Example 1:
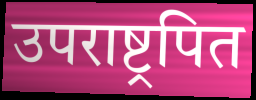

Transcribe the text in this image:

उपराष्ट्रपित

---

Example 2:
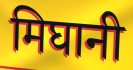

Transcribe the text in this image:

मिघानी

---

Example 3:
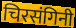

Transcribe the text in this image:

चिरसंगिनी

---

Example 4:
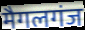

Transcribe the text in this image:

मैगलगंज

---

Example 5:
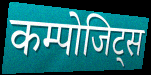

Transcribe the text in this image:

कम्पोजिट्स